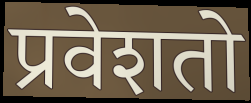
प्रवेशतो